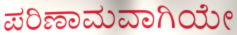
ಪರಿಣಾಮವಾಗಿಯೇ